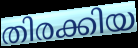
തിരക്കിയ